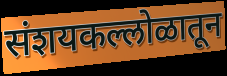
संशयकल्लोळातून